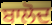
ਬਾਲੋਦ